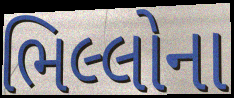
ભિલ્લોના